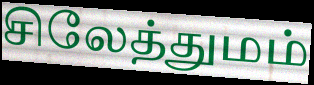
சிலேத்துமம்